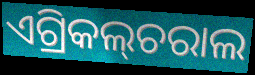
ଏଗ୍ରିକଲ୍‌ଚରାଲ